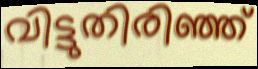
വിട്ടുതിരിഞ്ഞ്